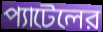
প্যাটেলের